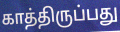
காத்திருப்பது